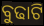
ବୁଢାଟି